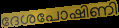
ദേശപോഷിണി